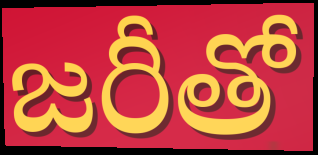
జరీతో